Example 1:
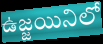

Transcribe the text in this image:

ఉజ్జయినిలో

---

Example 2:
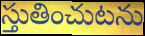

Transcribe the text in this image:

స్తుతించుటను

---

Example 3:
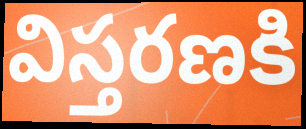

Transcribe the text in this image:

విస్తరణకి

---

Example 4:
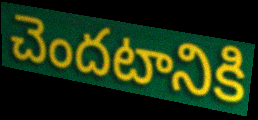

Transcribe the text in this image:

చెందటానికి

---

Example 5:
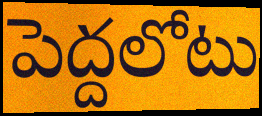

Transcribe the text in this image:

పెద్దలోటు